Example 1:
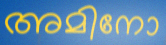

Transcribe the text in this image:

അമിനോ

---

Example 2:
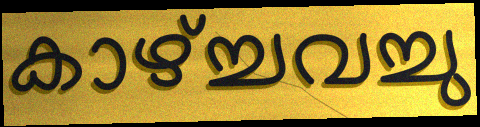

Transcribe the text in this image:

കാഴ്ച്ചവച്ചു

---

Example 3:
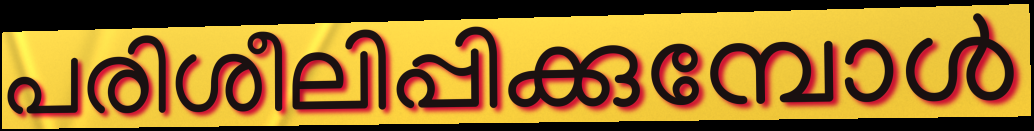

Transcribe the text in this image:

പരിശീലിപ്പിക്കുമ്പോൾ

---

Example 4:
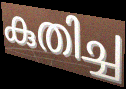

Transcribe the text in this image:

കുതിച്ച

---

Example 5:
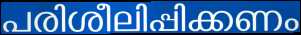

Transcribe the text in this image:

പരിശീലിപ്പിക്കണം